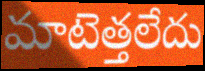
మాటెత్తలేదు